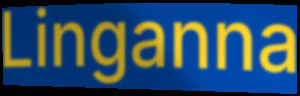
Linganna